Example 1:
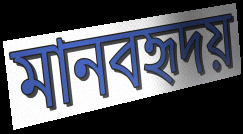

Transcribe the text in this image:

মানবহৃদয়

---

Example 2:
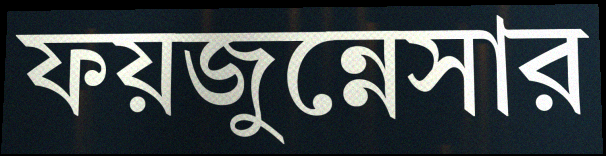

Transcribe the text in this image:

ফয়জুন্নেসার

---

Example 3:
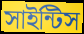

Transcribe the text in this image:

সাইন্টিস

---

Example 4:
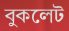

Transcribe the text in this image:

বুকলেট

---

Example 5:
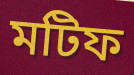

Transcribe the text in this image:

মটিফ